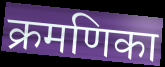
क्रमणिका